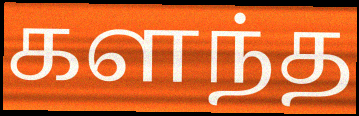
களந்த